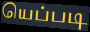
யெப்படி